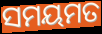
ସମୟମତ